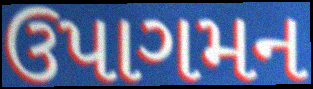
ઉપાગમન